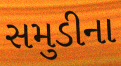
સમુડીના